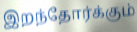
இறந்தோர்க்கும்